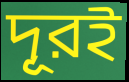
দূরই